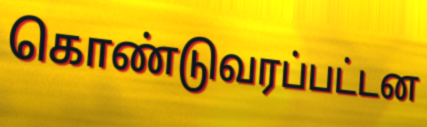
கொண்டுவரப்பட்டன